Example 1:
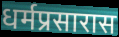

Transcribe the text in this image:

धर्मप्रसारास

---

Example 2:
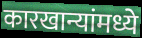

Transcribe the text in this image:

कारखान्यांमध्ये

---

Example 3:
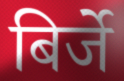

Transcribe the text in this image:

बिर्जे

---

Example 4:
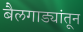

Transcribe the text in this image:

बैलगाड्यांतून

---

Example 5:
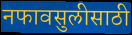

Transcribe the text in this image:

नफावसुलीसाठी